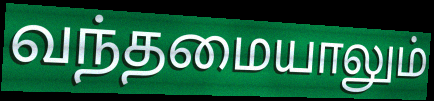
வந்தமையாலும்